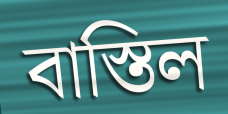
বাস্তিল